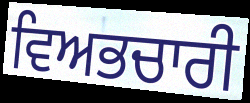
ਵਿਅਭਚਾਰੀ